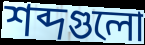
শব্দগুলো